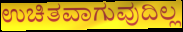
ಉಚಿತವಾಗುವುದಿಲ್ಲ